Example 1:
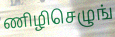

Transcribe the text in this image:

ணிழிசெழுங்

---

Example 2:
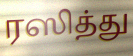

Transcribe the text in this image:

ரஸித்து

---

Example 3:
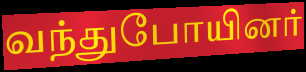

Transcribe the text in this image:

வந்துபோயினர்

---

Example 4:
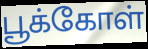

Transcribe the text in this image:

பூக்கோள்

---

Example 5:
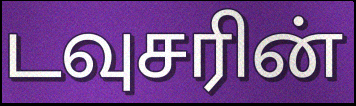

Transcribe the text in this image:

டவுசரின்